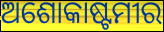
ଅଶୋକାଷ୍ଟମୀର